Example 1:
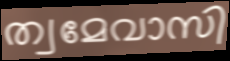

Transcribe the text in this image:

ത്വമേവാസി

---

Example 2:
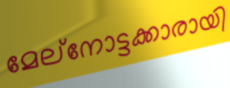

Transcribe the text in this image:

മേല്നോട്ടക്കാരായി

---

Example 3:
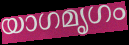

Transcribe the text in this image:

യാഗമൃഗം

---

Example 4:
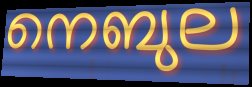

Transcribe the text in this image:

നെബുല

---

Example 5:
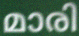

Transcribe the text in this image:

മാരി